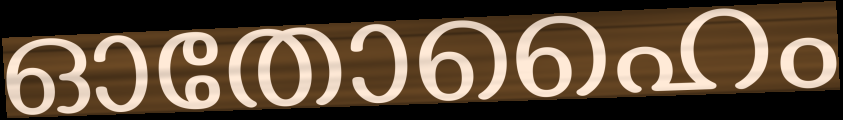
ഓതോഹൈം